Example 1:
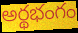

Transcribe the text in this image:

అర్థభంగం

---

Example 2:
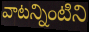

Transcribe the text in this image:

వాటన్నింటిని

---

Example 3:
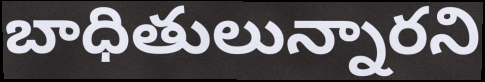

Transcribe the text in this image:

బాధితులున్నారని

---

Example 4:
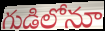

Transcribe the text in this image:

గుడిలోనూ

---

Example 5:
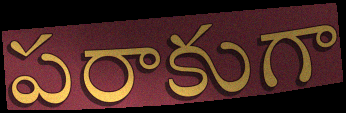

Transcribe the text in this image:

పరాకుగా